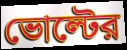
ভোল্টের